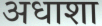
अधाशा